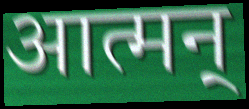
आत्मन्